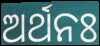
ଅର୍ଥନଃ